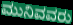
ಮುನಿವವರು